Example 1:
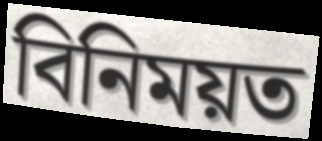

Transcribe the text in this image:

বিনিময়ত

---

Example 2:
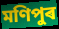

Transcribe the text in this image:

মণিপুৰ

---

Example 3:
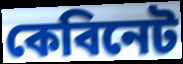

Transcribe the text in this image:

কেবিনেট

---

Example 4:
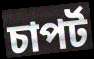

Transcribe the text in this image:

চাপৰ্ট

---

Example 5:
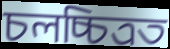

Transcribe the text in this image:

চলচ্চিত্ৰত